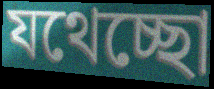
যথেচ্ছো